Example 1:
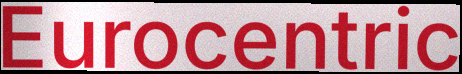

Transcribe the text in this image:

Eurocentric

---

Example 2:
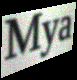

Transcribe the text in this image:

Mya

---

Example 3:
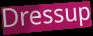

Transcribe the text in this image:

Dressup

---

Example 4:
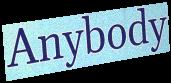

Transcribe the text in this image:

Anybody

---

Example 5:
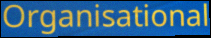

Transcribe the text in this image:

Organisational